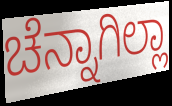
ಚೆನ್ನಾಗಿಲ್ಲಾ